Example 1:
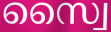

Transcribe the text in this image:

സ്വൈ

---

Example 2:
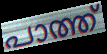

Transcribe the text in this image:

പാത്ത്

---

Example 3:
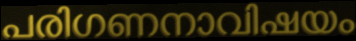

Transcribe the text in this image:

പരിഗണനാവിഷയം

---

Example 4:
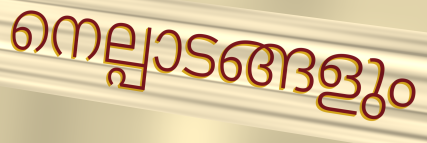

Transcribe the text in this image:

നെല്പാടങ്ങളും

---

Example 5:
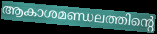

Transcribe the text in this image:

ആകാശമണ്ഡലത്തിന്റെ